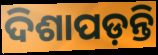
ଦିଶାପଡ଼ନ୍ତି